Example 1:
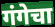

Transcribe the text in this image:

गंगेचा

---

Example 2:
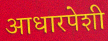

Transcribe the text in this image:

आधारपेशी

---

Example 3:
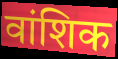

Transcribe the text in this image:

वांशिक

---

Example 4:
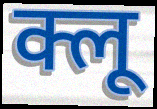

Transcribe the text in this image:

क्लू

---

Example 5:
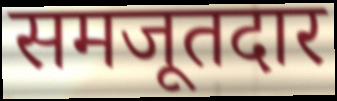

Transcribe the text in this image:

समजूतदार